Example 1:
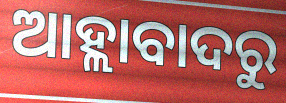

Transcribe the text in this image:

ଆହ୍ଲାବାଦରୁ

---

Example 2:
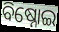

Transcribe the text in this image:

ବିଷ୍ନୋଇ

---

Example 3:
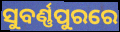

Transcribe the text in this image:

ସୁବର୍ଣ୍ଣପୁରରେ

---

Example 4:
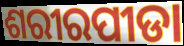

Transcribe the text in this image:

ଶରୀରପୀଡା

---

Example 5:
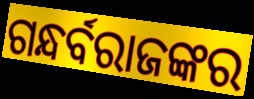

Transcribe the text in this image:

ଗନ୍ଧର୍ବରାଜଙ୍କର